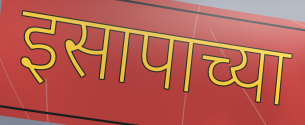
इसापाच्या